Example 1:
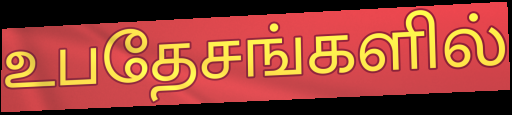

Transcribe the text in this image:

உபதேசங்களில்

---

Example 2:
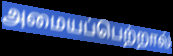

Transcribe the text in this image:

அமையப்பெற்றால்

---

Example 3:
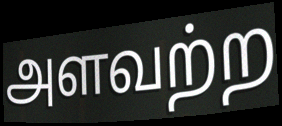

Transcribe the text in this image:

அளவற்ற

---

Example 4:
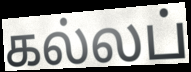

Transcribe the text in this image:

கல்லப்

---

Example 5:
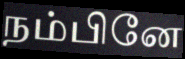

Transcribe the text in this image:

நம்பினே